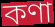
কণা